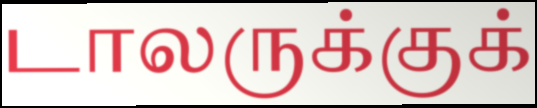
டாலருக்குக்